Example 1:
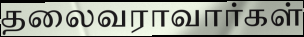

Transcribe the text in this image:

தலைவராவார்கள்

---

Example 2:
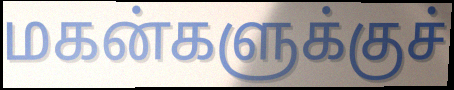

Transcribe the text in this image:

மகன்களுக்குச்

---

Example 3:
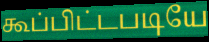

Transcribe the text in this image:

கூப்பிட்டபடியே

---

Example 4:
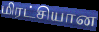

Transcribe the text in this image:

மிரட்சியான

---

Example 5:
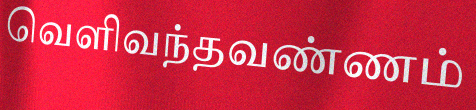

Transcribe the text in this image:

வெளிவந்தவண்ணம்